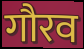
गौरव